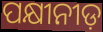
ପକ୍ଷୀନୀଡ଼